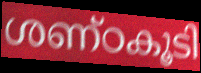
ശണ്ഠകൂടി